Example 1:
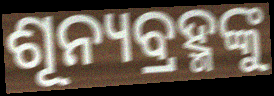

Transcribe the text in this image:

ଶୂନ୍ୟବ୍ରହ୍ମଙ୍କୁ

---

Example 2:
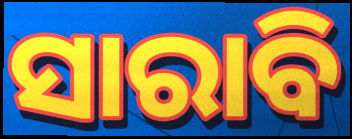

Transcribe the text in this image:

ସାରାବି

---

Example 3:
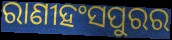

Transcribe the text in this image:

ରାଣୀହଂସପୁରର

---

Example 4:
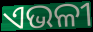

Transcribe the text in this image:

ଏଭଳୀ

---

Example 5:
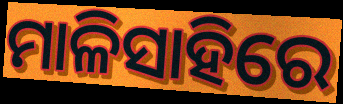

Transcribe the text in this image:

ମାଳିସାହିରେ